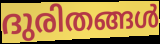
ദുരിതങ്ങൾ